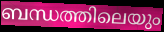
ബന്ധത്തിലെയും